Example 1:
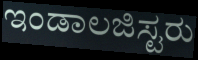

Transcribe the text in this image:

ಇಂಡಾಲಜಿಸ್ಟರು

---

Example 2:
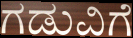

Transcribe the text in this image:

ಗಡುವಿಗೆ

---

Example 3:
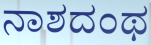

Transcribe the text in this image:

ನಾಶದಂಥ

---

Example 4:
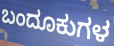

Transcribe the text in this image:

ಬಂದೂಕುಗಳ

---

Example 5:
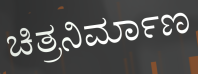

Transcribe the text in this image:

ಚಿತ್ರನಿರ್ಮಾಣ